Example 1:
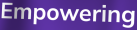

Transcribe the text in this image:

Empowering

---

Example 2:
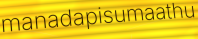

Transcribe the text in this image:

manadapisumaathu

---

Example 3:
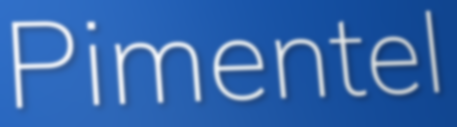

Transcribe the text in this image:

Pimentel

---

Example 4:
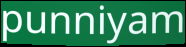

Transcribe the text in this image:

punniyam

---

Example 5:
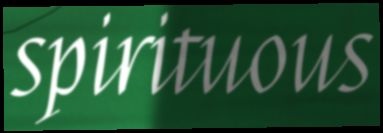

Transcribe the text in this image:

spirituous